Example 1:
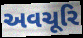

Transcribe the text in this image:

અવચૂરિ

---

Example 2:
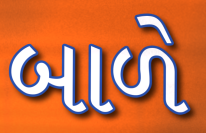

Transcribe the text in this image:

બાળે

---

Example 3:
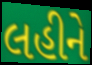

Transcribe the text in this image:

લહીને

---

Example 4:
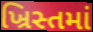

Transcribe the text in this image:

ખ્રિસ્તમાં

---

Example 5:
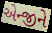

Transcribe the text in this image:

એન્જીને